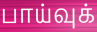
பாய்வுக்